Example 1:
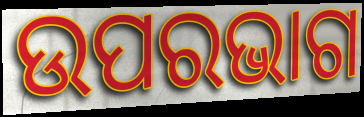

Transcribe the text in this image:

ଉପରଭାଗ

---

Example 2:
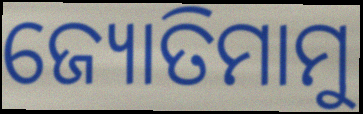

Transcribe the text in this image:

ଜ୍ୟୋତିମାମୁ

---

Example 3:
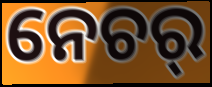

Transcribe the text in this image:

ନେଚର୍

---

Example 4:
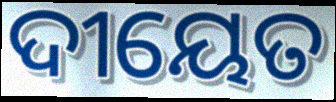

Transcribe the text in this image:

ଦୀୟେତ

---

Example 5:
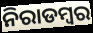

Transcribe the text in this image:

ନିରାଡମ୍ବର